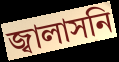
জ্বালাসনি